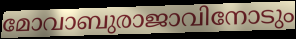
മോവാബുരാജാവിനോടും